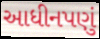
આધીનપણું